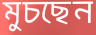
মুচছেন